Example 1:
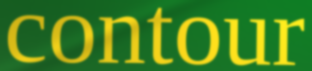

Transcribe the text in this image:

contour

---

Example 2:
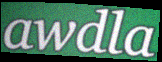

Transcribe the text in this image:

awdla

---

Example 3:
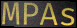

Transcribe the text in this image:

MPAs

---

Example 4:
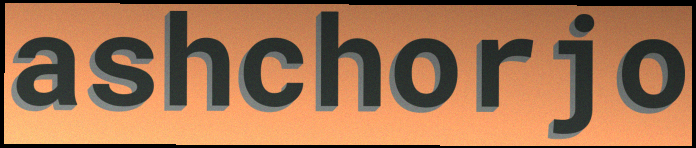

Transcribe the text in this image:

ashchorjo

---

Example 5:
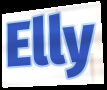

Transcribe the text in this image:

Elly